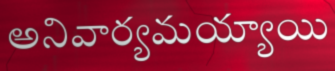
అనివార్యమయ్యాయి